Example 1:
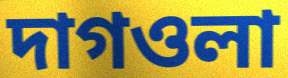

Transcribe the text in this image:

দাগওলা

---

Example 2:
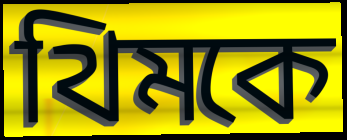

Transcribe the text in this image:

থিমকে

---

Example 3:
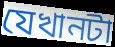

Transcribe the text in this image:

যেখানটা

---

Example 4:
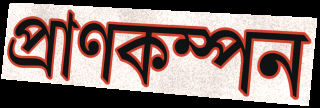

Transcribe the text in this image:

প্রাণকম্পন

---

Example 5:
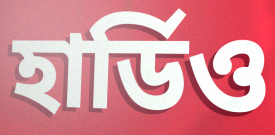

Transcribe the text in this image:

হার্ডিও